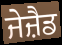
ਜੇਜ਼ੈਡ